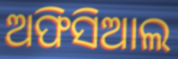
ଅଫିସିଆଲ